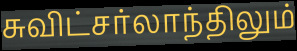
சுவிட்சர்லாந்திலும்